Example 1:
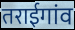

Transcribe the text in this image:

तराईगांव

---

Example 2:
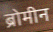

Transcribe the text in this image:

ब्रोमीन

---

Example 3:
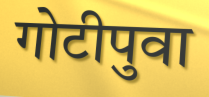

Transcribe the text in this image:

गोटीपुवा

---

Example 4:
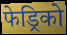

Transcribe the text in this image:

फेड्रिको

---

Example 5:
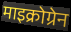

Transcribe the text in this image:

माइक्रोग्रेन